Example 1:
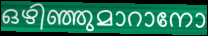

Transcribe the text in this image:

ഒഴിഞ്ഞുമാറാനോ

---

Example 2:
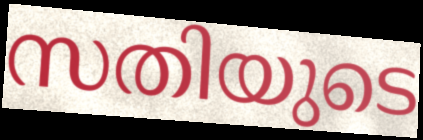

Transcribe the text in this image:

സതിയുടെ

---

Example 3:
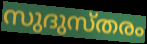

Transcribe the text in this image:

സുദുസ്തരം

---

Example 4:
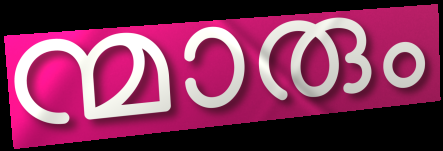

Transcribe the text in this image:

ന്മാരും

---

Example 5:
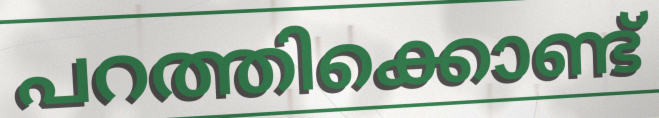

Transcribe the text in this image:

പറത്തിക്കൊണ്ട്